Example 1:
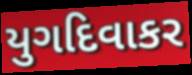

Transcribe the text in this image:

યુગદિવાકર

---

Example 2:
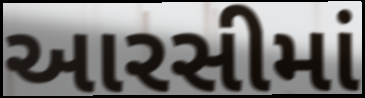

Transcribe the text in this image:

આરસીમાં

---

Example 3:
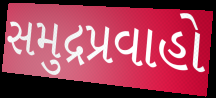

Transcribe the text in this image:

સમુદ્રપ્રવાહો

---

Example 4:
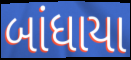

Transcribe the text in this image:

બાંધાયા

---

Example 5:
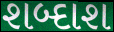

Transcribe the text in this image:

શબ્દાશ